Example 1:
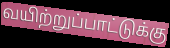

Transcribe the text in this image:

வயிற்றுப்பாட்டுக்கு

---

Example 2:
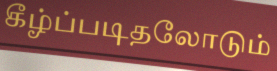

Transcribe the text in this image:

கீழ்ப்படிதலோடும்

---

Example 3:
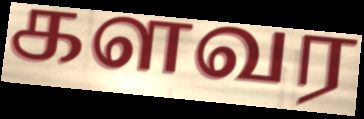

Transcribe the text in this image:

களவர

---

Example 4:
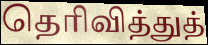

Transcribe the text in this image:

தெரிவித்துத்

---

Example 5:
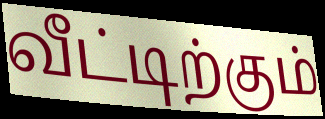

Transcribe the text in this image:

வீட்டிற்கும்